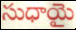
సుధాయై